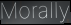
Morally